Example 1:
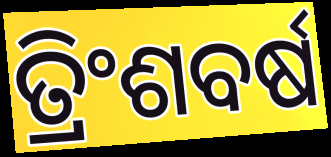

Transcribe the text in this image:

ତ୍ରିଂଶବର୍ଷ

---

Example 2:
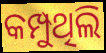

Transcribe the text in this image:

କମ୍ପୁଥିଲି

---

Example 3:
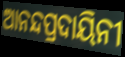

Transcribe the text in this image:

ଆନନ୍ଦପ୍ରଦାୟିନୀ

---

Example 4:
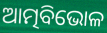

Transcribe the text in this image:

ଆତ୍ମବିଭୋଳ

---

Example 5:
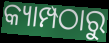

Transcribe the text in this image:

କ୍ୟାମ୍ପଠାରୁ